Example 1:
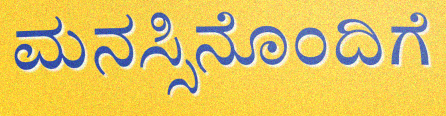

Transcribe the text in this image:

ಮನಸ್ಸಿನೊಂದಿಗೆ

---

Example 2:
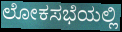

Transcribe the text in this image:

ಲೋಕಸಭೆಯಲ್ಲಿ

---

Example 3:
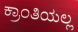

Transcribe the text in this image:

ಕ್ರಾಂತಿಯಲ್ಲ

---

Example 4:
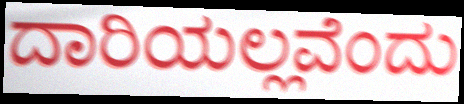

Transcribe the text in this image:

ದಾರಿಯಲ್ಲವೆಂದು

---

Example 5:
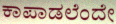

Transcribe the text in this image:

ಕಾಪಾಡಲೆಂದೇ